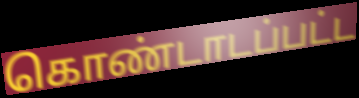
கொண்டாடப்பட்ட